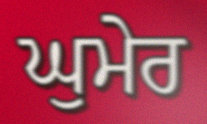
ਘੁਮੇਰ